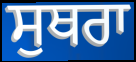
ਸੁਥਰਾ